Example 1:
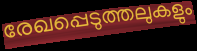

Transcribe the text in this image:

രേഖപ്പെടുത്തലുകളും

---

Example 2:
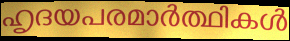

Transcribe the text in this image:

ഹൃദയപരമാർത്ഥികൾ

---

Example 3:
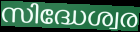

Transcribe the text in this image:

സിദ്ധേശ്വര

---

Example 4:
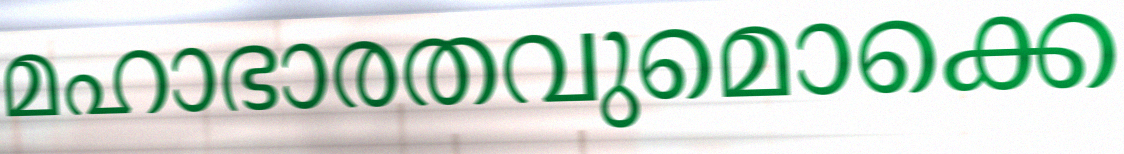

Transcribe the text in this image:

മഹാഭാരതവുമൊക്കെ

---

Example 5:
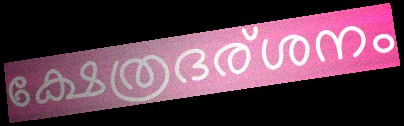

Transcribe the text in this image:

ക്ഷേത്രദര്ശനം